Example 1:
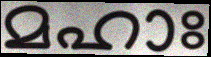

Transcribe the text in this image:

മഹാഃ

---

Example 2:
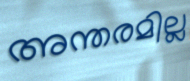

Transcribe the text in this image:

അന്തരമില്ല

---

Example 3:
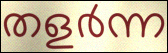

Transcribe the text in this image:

തളർന്ന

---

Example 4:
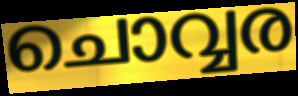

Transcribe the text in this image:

ചൊവ്വര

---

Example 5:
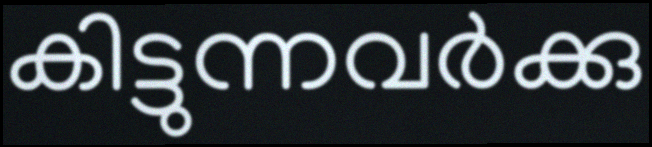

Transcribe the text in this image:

കിട്ടുന്നവർക്കു